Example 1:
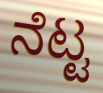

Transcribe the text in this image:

ನೆಟ್ಟ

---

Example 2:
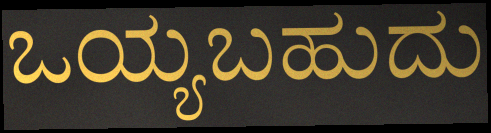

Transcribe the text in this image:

ಒಯ್ಯಬಹುದು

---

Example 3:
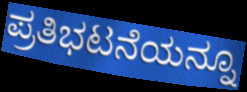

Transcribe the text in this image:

ಪ್ರತಿಭಟನೆಯನ್ನೂ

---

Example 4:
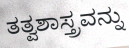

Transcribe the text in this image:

ತತ್ವಶಾಸ್ತ್ರವನ್ನು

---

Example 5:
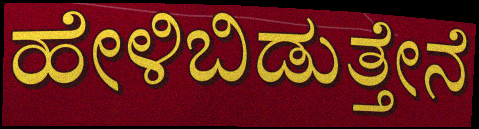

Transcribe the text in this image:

ಹೇಳಿಬಿಡುತ್ತೇನೆ